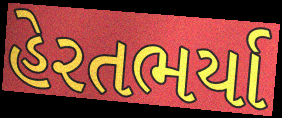
હેરતભર્યા